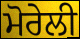
ਮੋਰੇਲੀ